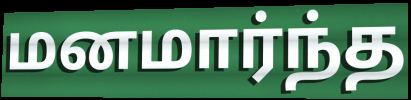
மனமார்ந்த